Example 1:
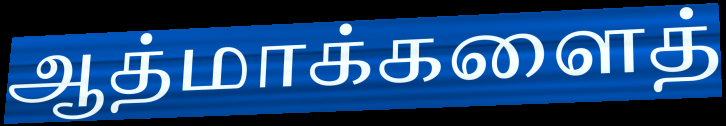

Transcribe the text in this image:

ஆத்மாக்களைத்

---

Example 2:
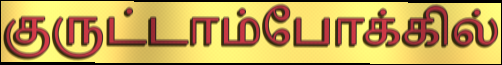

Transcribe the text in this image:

குருட்டாம்போக்கில்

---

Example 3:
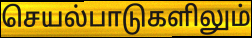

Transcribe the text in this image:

செயல்பாடுகளிலும்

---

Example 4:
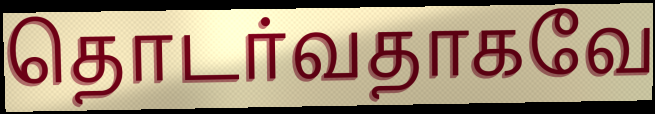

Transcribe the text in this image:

தொடர்வதாகவே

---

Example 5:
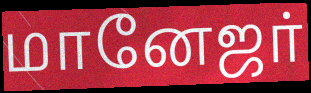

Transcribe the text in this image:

மானேஜர்